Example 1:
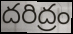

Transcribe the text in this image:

దరిద్రం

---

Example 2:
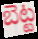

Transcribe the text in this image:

బెట్ట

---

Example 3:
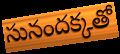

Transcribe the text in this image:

సునందక్కతో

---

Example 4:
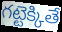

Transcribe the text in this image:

గట్టెక్కితే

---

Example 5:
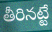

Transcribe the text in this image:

తీరినట్టే